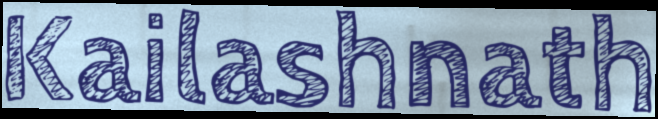
Kailashnath